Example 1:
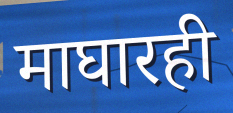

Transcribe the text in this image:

माघारही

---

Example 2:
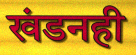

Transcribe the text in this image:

खंडनही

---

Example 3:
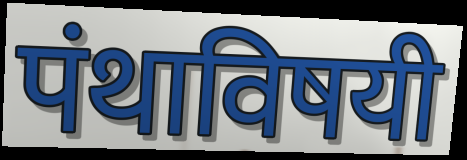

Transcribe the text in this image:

पंथाविषयी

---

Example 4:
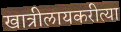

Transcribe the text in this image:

खात्रीलायकरीत्या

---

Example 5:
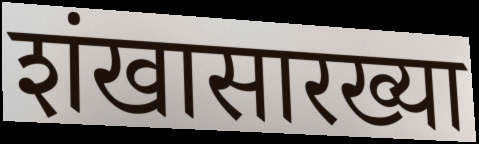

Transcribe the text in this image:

शंखासारख्या